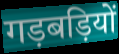
गड़बड़ियों